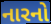
નારનો